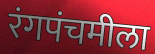
रंगपंचमीला